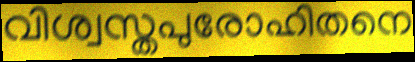
വിശ്വസ്തപുരോഹിതനെ